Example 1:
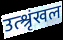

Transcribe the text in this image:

उत्श्रृंखल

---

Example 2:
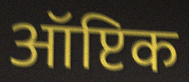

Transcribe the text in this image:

ऑप्टिक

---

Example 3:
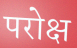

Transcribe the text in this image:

परोक्ष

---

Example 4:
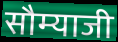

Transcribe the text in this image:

सौम्याजी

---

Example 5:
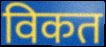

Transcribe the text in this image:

विकत